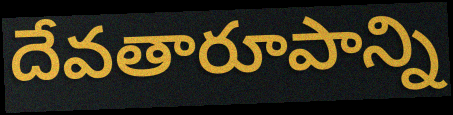
దేవతారూపాన్ని